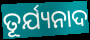
ତୂର୍ଯ୍ୟନାଦ